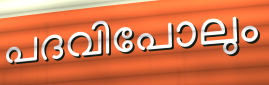
പദവിപോലും